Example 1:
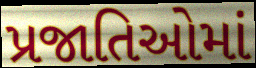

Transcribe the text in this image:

પ્રજાતિઓમાં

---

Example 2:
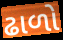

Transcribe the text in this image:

ઢાળો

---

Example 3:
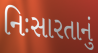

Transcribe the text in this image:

નિઃસારતાનું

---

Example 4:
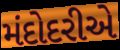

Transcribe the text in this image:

મંદોદરીએ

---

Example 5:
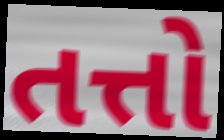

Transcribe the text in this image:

તત્તો